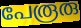
പേരൂരു